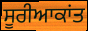
ਸੂਰੀਆਕਾਂਤ